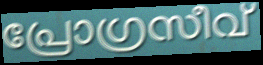
പ്രോഗ്രസീവ്